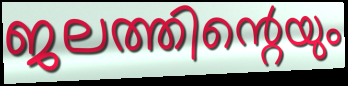
ജലത്തിന്റെയും